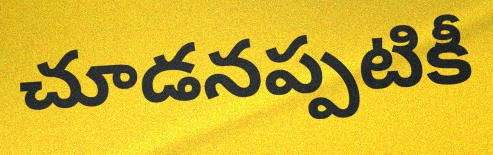
చూడనప్పటికీ